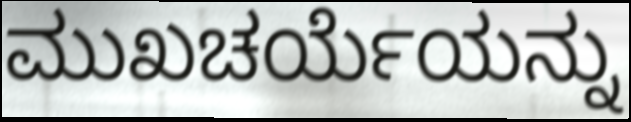
ಮುಖಚರ್ಯೆಯನ್ನು